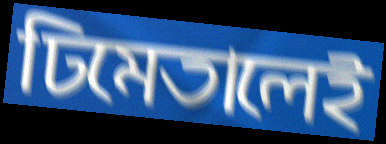
ঢিমেতালেই